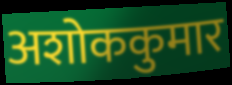
अशोककुमार